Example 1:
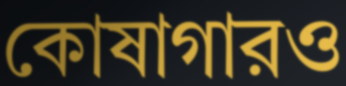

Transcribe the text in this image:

কোষাগারও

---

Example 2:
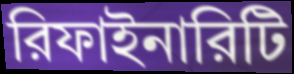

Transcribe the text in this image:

রিফাইনারিটি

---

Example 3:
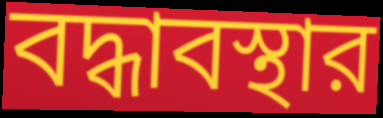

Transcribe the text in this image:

বদ্ধাবস্থার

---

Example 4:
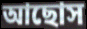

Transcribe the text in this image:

আছোস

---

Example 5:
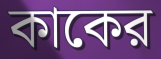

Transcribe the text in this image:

কাকের